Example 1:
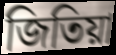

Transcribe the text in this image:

জিতিয়া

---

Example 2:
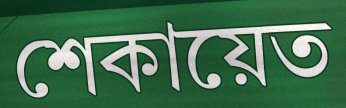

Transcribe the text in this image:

শেকায়েত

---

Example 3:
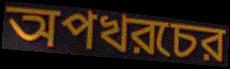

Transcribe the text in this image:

অপখরচের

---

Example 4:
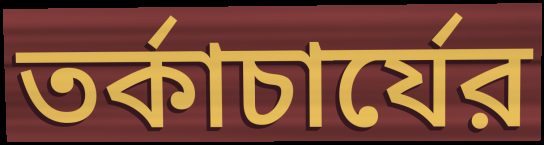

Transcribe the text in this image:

তর্কাচার্যের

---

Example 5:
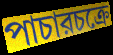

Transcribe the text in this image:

পাচারচক্রে